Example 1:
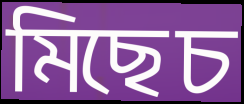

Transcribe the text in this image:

মিছেচ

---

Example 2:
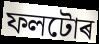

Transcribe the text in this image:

ফলটোৰ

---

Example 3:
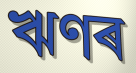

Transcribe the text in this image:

ঋণৰ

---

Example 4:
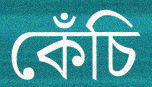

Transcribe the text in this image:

কেঁচি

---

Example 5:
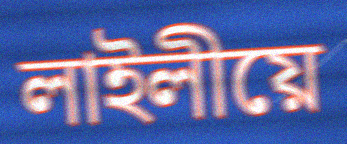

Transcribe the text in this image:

লাইলীয়ে